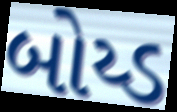
બોય્ડ